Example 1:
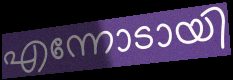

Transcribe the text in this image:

എന്നോടായി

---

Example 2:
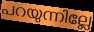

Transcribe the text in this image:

പറയുന്നില്ലേ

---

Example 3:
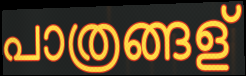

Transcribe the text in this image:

പാത്രങ്ങള്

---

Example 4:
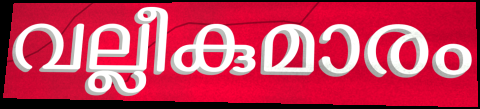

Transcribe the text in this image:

വല്ലീകുമാരം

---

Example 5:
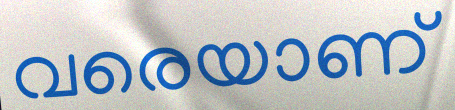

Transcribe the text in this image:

വരെയാണ്